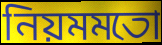
নিয়মমতো